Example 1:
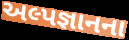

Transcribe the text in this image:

અલ્પજ્ઞાનના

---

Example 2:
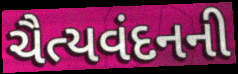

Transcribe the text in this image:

ચૈત્યવંદનની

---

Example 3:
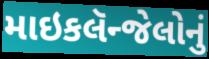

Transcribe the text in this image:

માઇકલૅન્જેલોનું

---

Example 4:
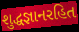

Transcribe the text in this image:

શુદ્ધજ્ઞાનરહિત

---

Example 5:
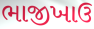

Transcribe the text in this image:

ભાજીખાઉ